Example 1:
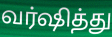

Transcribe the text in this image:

வர்ஷித்து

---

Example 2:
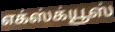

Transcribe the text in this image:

எக்ஸ்க்யூஸ்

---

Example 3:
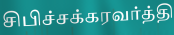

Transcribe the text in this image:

சிபிச்சக்கரவர்த்தி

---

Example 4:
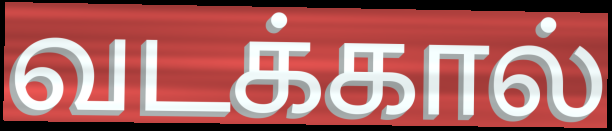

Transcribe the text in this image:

வடக்கால்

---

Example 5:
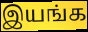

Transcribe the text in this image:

இயங்க